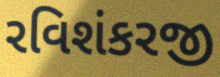
રવિશંકરજી